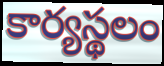
కార్యస్థలం